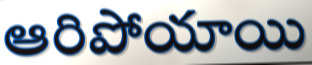
ఆరిపోయాయి